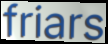
friars